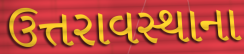
ઉત્તરાવસ્થાના